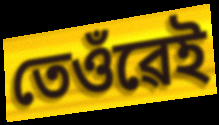
তেওঁৱেই